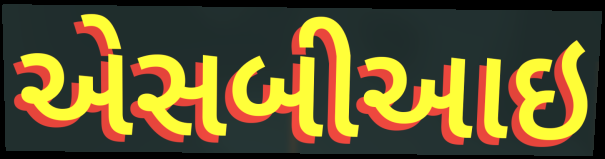
એસબીઆઇ